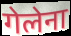
गेलेना